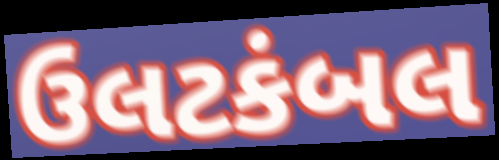
ઉલટકંબલ